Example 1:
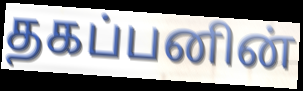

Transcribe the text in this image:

தகப்பனின்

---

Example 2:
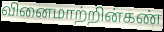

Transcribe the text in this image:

வினைமாற்றின்கண்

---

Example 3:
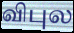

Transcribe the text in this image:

விபுல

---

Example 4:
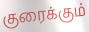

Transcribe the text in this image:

குரைக்கும்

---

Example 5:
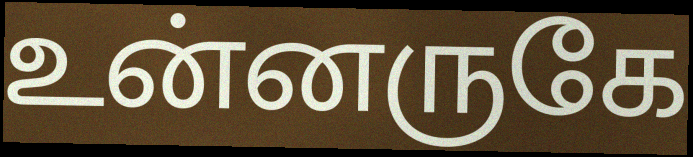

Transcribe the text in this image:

உன்னருகே